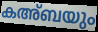
കഅ്ബയും